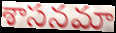
శాసనమా